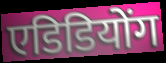
एडिडियोंग